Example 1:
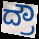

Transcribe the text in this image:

ದ್ರೌ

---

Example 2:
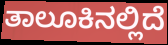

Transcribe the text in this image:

ತಾಲೂಕಿನಲ್ಲಿದೆ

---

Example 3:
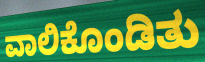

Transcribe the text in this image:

ವಾಲಿಕೊಂಡಿತು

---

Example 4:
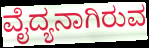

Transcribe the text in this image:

ವೈದ್ಯನಾಗಿರುವ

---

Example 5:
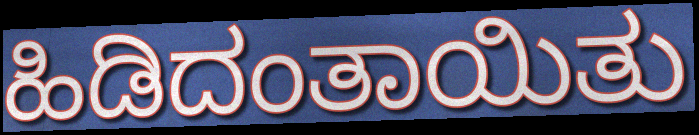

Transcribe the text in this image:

ಹಿಡಿದಂತಾಯಿತು